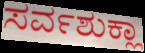
ಸರ್ವಶುಕ್ಲಾ